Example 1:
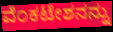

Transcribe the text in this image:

ವೆಂಕಟೇಶನನ್ನು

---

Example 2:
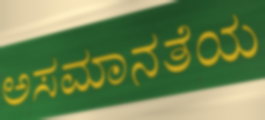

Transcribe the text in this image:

ಅಸಮಾನತೆಯ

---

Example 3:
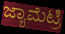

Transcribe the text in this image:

ಜ್ಯಾಮೆಟ್ರಿ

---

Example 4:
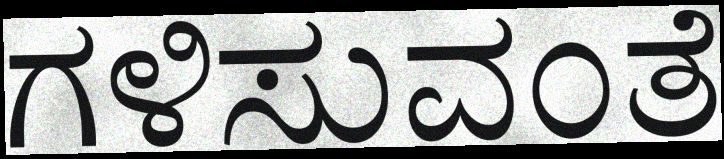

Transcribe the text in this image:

ಗಳಿಸುವಂತೆ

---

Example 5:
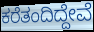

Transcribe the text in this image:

ಕರೆತಂದಿದ್ದೇವೆ